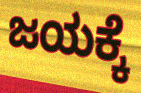
ಜಯಕ್ಕೆ